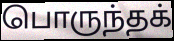
பொருந்தக்